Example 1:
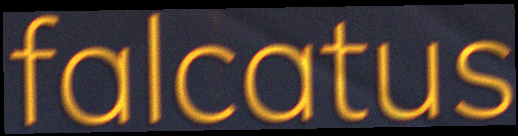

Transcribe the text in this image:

falcatus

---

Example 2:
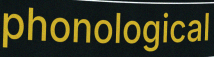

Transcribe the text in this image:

phonological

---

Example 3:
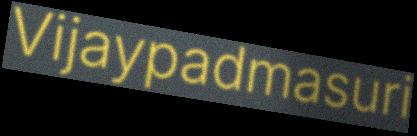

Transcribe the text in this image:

Vijaypadmasuri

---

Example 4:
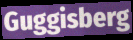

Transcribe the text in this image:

Guggisberg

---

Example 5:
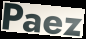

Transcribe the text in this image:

Paez